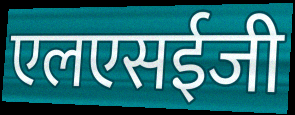
एलएसईजी